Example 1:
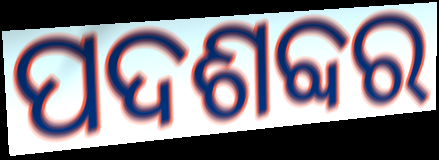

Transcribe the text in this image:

ପଦଶବ୍ଦର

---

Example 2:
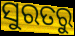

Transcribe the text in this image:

ସୁରତରୁ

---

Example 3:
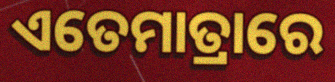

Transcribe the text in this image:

ଏତେମାତ୍ରାରେ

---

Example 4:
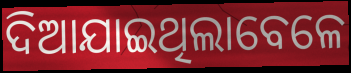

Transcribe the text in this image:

ଦିଆଯାଇଥିଲାବେଳେ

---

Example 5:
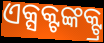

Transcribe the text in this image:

ଏକ୍ସକ୍ଟଙ୍କକ୍ଟ୍ର